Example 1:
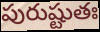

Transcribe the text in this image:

పురుష్టుతః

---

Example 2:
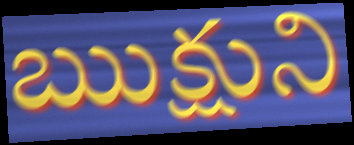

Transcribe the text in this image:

ఋక్షుని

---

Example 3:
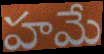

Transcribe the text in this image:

హమే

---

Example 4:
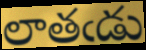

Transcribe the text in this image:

లాతఁడు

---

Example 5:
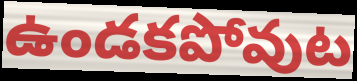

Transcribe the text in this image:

ఉండకపోవుట